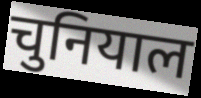
चुनियाल